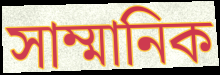
সাম্মানিক